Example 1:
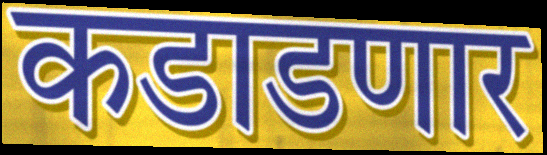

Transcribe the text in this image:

कडाडणार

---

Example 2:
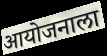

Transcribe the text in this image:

आयोजनाला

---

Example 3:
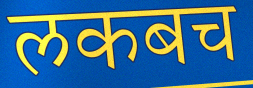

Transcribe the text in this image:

लकबच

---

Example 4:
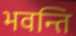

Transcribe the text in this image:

भवन्ति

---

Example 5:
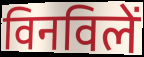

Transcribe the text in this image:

विनविलें